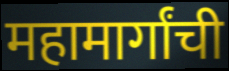
महामार्गांची